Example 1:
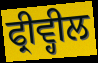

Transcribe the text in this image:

ਫ੍ਰੀਵ੍ਹੀਲ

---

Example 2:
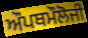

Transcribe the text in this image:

ਔਪਥਮੌਲੋਜੀ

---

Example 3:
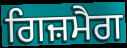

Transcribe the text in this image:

ਗਿਜ਼ਮੈਗ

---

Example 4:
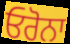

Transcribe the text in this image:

ਓਰੋਨਾ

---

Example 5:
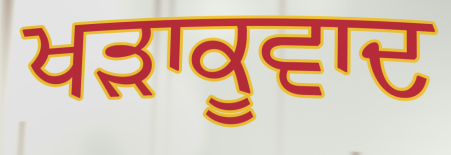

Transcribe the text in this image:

ਖੜਾਕੂਵਾਦ